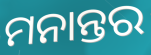
ମନାନ୍ତର